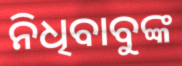
ନିଧିବାବୁଙ୍କ